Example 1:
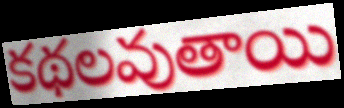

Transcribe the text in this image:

కథలవుతాయి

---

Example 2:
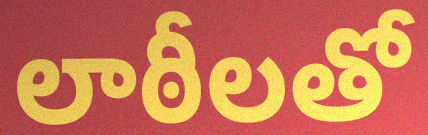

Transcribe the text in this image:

లాఠీలతో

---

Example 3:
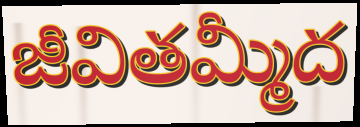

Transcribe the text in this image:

జీవితమ్మీద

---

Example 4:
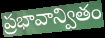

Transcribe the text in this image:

ప్రభావాన్వితం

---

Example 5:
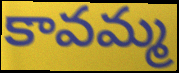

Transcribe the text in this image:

కావమ్మ